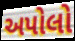
અપોલો